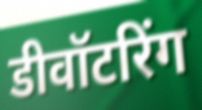
डीवॉटरिंग